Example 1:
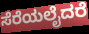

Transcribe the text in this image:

ಸೆರೆಯಲೈದರೆ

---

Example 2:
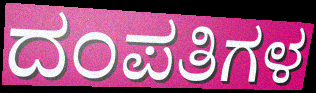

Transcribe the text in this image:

ದಂಪತಿಗಳ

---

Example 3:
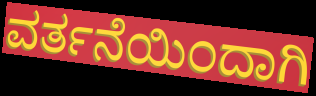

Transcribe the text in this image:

ವರ್ತನೆಯಿಂದಾಗಿ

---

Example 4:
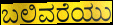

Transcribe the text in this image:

ಬಲಿವರೆಯು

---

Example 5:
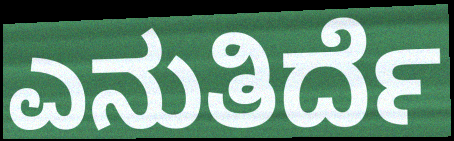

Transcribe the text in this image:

ಎನುತಿರ್ದೆ